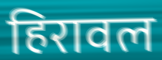
हिरावल